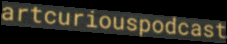
artcuriouspodcast